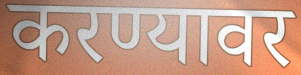
करण्यावर